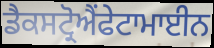
ਡੈਕਸਟ੍ਰੋਐਂਫੇਟਾਮਾਈਨ